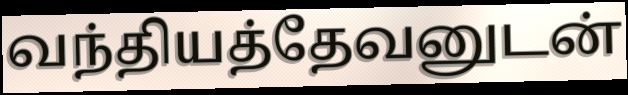
வந்தியத்தேவனுடன்